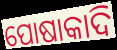
ପୋଷାକାଦି